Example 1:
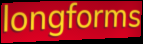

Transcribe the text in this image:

longforms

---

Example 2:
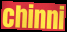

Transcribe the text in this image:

chinni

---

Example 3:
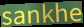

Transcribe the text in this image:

sankhe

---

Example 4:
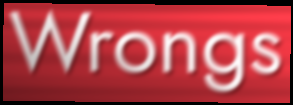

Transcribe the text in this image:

Wrongs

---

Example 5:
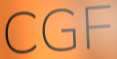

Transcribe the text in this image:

CGF